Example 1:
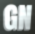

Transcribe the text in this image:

GN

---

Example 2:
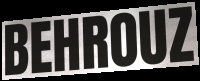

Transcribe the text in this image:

BEHROUZ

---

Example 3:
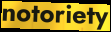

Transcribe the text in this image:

notoriety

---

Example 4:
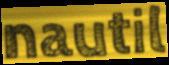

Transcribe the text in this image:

nautil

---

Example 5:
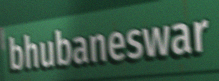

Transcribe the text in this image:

bhubaneswar